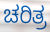
ಚರಿತ್ರ